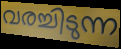
വരച്ചിടുന്ന